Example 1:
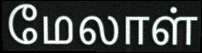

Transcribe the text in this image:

மேலாள்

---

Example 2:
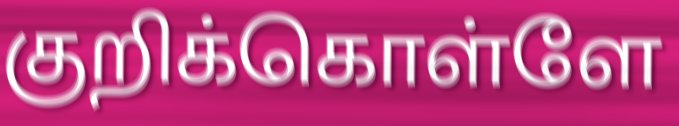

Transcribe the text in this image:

குறிக்கொள்ளே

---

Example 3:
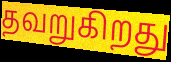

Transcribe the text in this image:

தவறுகிறது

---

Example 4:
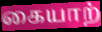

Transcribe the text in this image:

கையாற்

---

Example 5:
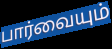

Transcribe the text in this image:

பார்வையும்